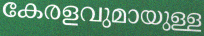
കേരളവുമായുള്ള